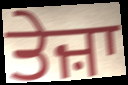
ਤੇਜ਼ਾ